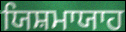
ਯਿਸ਼ਮਾਯਾਹ